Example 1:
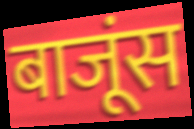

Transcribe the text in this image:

बाजूंस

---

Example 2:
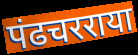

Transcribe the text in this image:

पंढचरराया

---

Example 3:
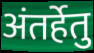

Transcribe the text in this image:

अंतर्हेतु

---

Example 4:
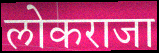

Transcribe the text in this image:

लोकराजा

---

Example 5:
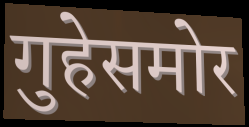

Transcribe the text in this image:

गुहेसमोर